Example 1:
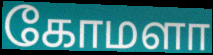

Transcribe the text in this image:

கோமளா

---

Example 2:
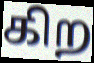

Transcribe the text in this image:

கிற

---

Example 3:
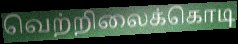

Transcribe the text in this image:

வெற்றிலைக்கொடி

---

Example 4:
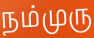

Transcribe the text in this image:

நம்முரு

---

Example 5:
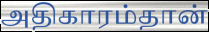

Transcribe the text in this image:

அதிகாரம்தான்